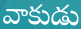
వాకుడు